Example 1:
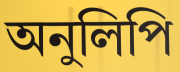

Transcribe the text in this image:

অনুলিপি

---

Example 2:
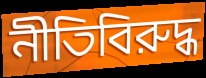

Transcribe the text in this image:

নীতিবিরুদ্ধ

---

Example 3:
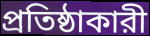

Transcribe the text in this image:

প্রতিষ্ঠাকারী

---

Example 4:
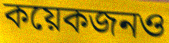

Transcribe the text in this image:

কয়েকজনও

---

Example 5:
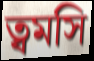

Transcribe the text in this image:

ত্বমসি